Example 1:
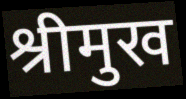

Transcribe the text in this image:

श्रीमुख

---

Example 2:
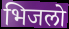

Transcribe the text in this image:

भिजलो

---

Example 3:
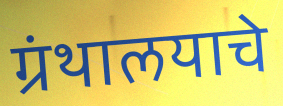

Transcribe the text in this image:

ग्रंथालयाचे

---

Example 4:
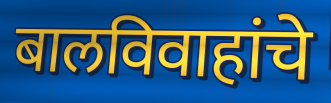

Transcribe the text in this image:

बालविवाहांचे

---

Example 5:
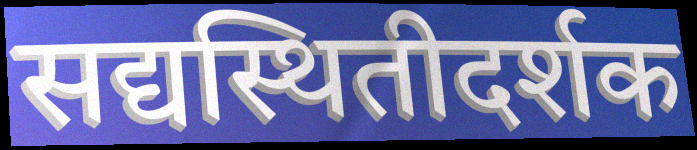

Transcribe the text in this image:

सद्यस्थितीदर्शक